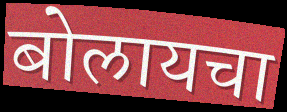
बोलायचा